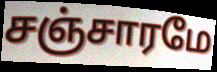
சஞ்சாரமே